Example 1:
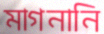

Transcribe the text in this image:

মাগনানি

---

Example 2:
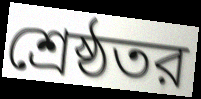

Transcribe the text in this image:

শ্রেষ্ঠতর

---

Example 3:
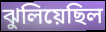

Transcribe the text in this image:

ঝুলিয়েছিল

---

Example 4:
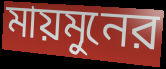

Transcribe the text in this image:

মায়মুনের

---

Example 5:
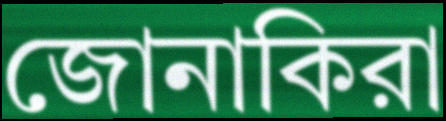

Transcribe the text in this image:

জোনাকিরা